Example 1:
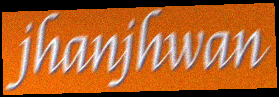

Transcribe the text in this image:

jhanjhwan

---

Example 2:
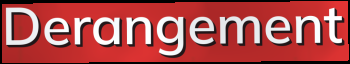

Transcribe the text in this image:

Derangement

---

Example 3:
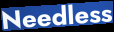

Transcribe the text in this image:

Needless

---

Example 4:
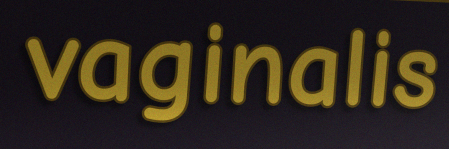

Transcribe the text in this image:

vaginalis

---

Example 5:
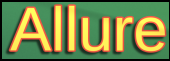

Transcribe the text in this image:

Allure